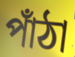
পাঁঠা